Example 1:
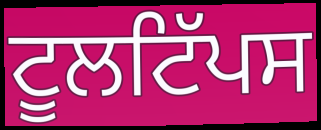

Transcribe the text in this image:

ਟੂਲਟਿੱਪਸ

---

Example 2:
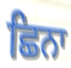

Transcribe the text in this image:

ਛਿਨਾ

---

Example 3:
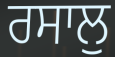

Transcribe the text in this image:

ਰਸਾਲੁ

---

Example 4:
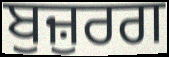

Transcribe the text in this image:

ਬੁਜ਼ੁਰਗ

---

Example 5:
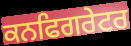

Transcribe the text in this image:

ਕਨਫਿਗਰੇਟਰ